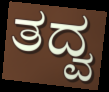
ತದ್ವ